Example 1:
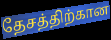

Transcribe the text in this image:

தேசத்திற்கான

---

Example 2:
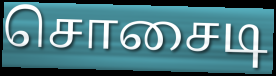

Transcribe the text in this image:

சொசைடி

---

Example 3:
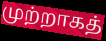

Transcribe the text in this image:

முற்றாகத்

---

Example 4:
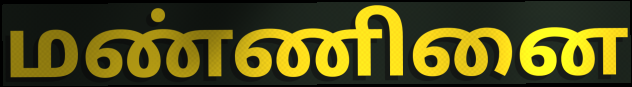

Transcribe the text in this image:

மண்ணினை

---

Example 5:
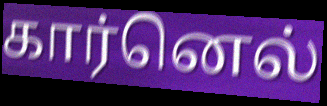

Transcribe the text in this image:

கார்னெல்